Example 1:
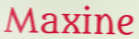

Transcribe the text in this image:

Maxine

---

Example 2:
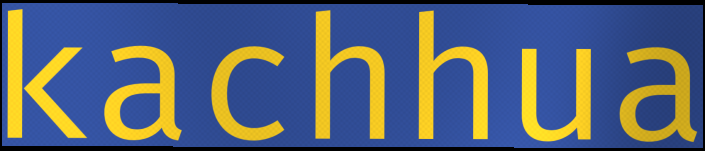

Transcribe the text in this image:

kachhua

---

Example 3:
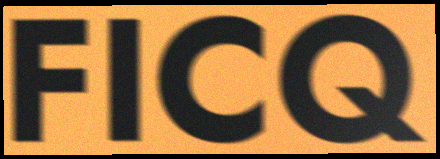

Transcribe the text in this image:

FICQ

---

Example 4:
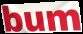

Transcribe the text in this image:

bum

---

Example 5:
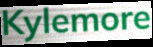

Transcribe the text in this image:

Kylemore